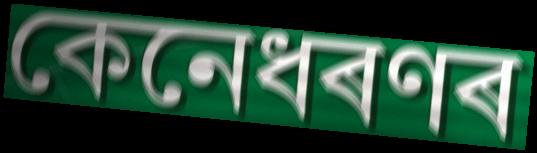
কেনেধৰণৰ